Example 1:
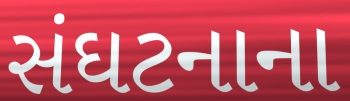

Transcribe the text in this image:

સંઘટનાના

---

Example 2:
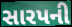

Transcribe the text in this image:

સારપની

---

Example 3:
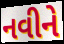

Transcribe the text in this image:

નવીને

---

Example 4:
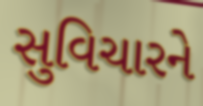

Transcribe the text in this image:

સુવિચારને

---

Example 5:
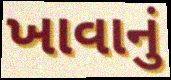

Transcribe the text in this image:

ખાવાનું